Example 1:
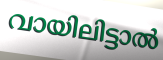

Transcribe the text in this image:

വായിലിട്ടാൽ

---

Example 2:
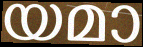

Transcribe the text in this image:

യമാ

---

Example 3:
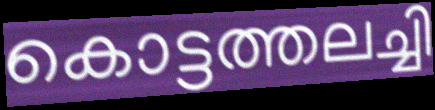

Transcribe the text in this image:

കൊട്ടത്തലച്ചി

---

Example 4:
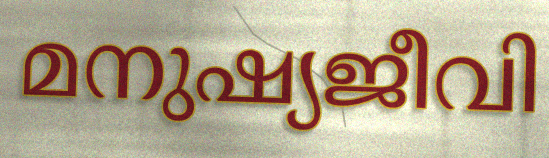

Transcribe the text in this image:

മനുഷ്യജീവി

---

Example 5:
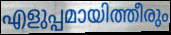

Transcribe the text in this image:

എളുപ്പമായിത്തീരും